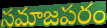
సమాజపరం